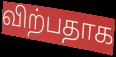
விற்பதாக